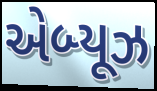
એબ્યૂઝ